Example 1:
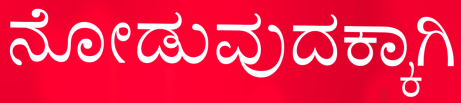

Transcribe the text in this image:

ನೋಡುವುದಕ್ಕಾಗಿ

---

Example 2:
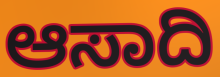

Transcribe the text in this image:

ಆಸಾದಿ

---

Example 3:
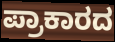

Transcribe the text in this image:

ಪ್ರಾಕಾರದ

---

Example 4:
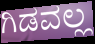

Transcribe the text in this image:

ಗಿಡವಲ್ಲ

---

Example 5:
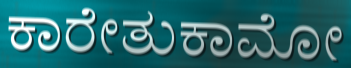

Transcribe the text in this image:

ಕಾರೇತುಕಾಮೋ